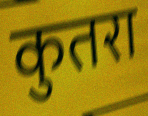
कुतरा